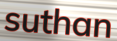
suthan